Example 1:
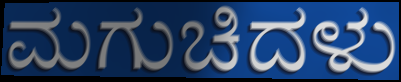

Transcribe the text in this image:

ಮಗುಚಿದಳು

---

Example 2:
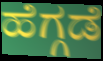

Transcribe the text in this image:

ಹೆಗ್ಗಡೆ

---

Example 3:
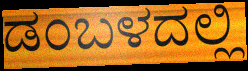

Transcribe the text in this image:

ಡಂಬಳದಲ್ಲಿ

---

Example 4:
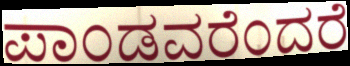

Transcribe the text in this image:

ಪಾಂಡವರೆಂದರೆ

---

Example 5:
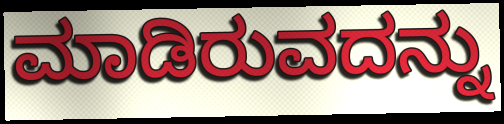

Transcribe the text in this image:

ಮಾಡಿರುವದನ್ನು